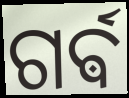
ଗର୍ଵ